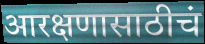
आरक्षणासाठीचं